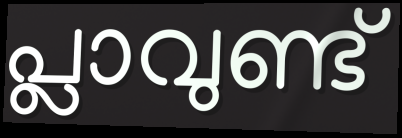
പ്ലാവുണ്ട്